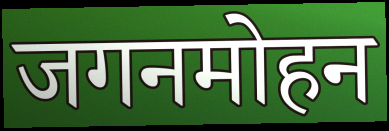
जगनमोहन